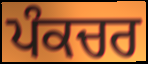
ਪੰਕਚਰ